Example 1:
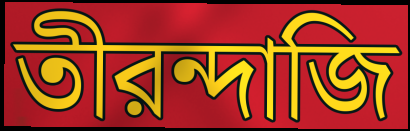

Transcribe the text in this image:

তীরন্দাজি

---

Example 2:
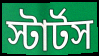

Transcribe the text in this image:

স্টার্টস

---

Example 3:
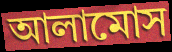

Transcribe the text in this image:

আলামোস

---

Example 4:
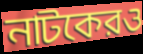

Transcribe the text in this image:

নাটকেরও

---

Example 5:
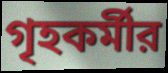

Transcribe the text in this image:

গৃহকর্মীর